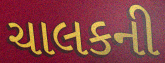
ચાલકની